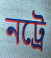
নট্ৰে